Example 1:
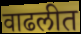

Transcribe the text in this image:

वाढलीत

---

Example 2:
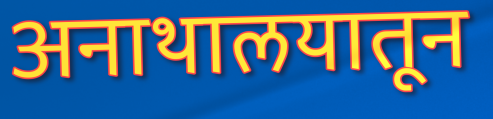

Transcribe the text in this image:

अनाथालयातून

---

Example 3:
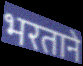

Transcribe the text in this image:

भरताने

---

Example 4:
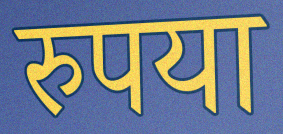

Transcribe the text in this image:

रुपया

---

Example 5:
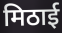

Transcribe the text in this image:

मिठाई